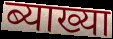
ब्याख्या